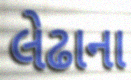
લેઢાના